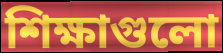
শিক্ষাগুলো